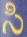
సి